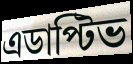
এডাপ্টিভ